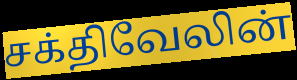
சக்திவேலின்